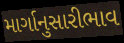
માર્ગાનુસારીભાવ